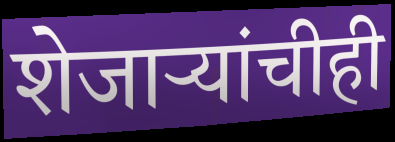
शेजाऱ्यांचीही